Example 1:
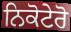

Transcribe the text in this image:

ਨਿਕੋਟੇਰੋ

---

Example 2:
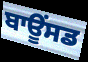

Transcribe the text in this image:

ਬਾਊਂਸਡ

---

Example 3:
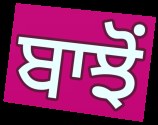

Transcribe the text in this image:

ਬਾਝੋਂ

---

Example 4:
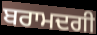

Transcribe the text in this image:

ਬਰਾਮਦਗੀ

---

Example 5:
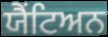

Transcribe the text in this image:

ਯੈਂਟਿਅਨ